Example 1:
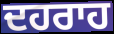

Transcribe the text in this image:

ਦਹਰਾਹ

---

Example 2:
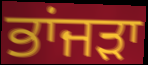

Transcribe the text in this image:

ਭਾਂਜੜਾ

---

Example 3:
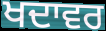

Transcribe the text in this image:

ਖਦਾਵਰ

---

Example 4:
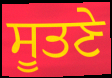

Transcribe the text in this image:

ਸੂਤਣੇ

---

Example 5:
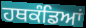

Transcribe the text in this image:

ਹਥਕੰਡਿਆਂ